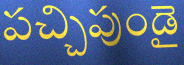
పచ్చిపుండై